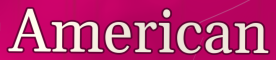
American